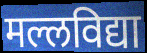
मल्लविद्या